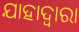
ଯାହାଦ୍ୱାରା